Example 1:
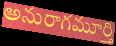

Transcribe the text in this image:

అనురాగమూర్తి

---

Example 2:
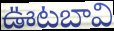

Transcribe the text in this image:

ఊటబావి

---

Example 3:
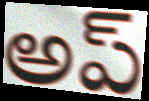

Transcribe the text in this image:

అప్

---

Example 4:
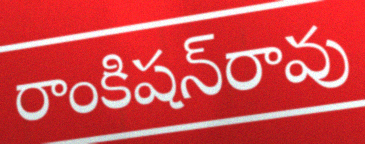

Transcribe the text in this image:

రాంకిషన్‌రావు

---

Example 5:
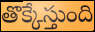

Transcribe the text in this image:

తొక్కేస్తుంది